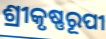
ଶ୍ରୀକୃଷ୍ଣରୂପୀ